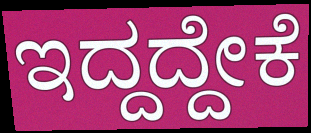
ಇದ್ದದ್ದೇಕೆ